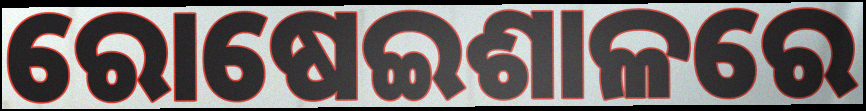
ରୋଷେଇଶାଳରେ